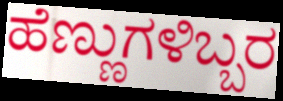
ಹೆಣ್ಣುಗಳಿಬ್ಬರ